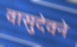
वासुदेवने